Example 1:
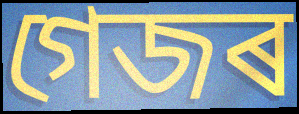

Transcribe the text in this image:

গেজৰ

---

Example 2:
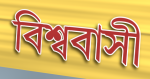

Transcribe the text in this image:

বিশ্ববাসী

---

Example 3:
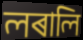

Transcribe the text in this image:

লৰালি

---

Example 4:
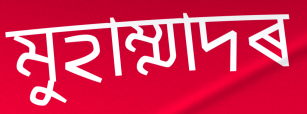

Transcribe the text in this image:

মুহাম্মাদৰ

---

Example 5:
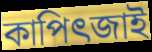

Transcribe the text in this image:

কাপিৎজাই